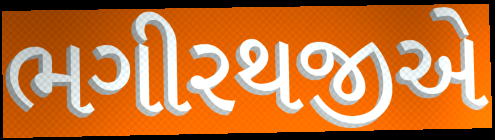
ભગીરથજીએ